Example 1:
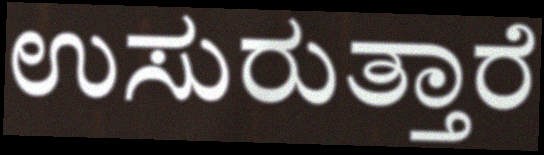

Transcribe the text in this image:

ಉಸುರುತ್ತಾರೆ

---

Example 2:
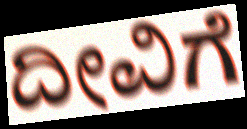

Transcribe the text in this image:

ದೀವಿಗೆ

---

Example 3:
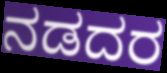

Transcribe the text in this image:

ನಡದರ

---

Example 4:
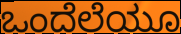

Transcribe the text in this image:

ಒಂದೆಲೆಯೂ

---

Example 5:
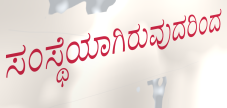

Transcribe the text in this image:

ಸಂಸ್ಥೆಯಾಗಿರುವುದರಿಂದ